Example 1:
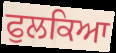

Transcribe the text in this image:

ਫੁਲਕਿਆ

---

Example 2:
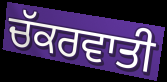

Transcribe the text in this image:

ਚੱਕਰਵਾਤੀ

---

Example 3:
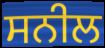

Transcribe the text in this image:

ਸਨੀਲ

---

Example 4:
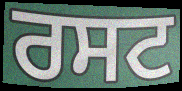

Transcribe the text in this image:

ਰਸਟ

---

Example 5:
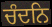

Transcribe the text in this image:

ਚੰਦਨਿ